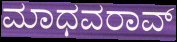
ಮಾಧವರಾವ್